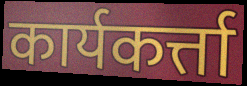
कार्यकर्त्ता